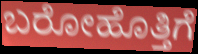
ಬರೋಹೊತ್ತಿಗೆ